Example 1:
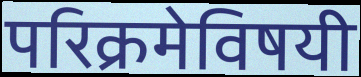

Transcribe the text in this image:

परिक्रमेविषयी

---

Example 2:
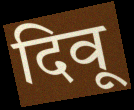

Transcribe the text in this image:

दिवू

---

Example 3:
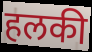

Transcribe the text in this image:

हलकी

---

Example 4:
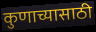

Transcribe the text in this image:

कुणाच्यासाठी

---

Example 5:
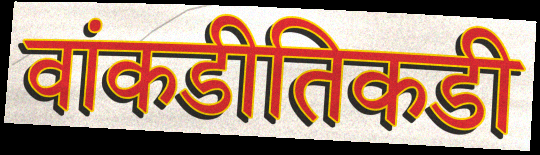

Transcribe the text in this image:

वांकडीतिकडी